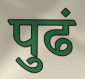
पुढं